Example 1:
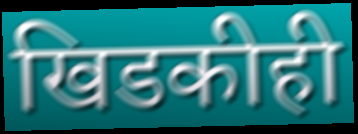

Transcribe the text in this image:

खिडकीही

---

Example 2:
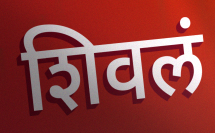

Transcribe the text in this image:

शिवलं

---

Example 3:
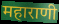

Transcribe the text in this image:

महाराणी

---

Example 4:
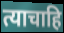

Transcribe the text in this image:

त्याचाहि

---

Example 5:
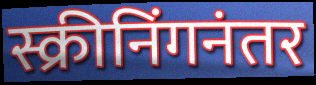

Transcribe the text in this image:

स्क्रीनिंगनंतर